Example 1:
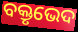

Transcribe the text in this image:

ବକ୍ତୃଭେଦ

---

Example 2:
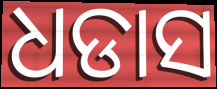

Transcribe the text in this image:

ଧଡାସ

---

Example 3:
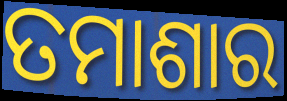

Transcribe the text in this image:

ତମାଶାର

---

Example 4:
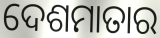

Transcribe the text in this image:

ଦେଶମାତାର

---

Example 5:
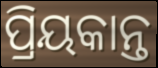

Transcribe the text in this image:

ପ୍ରିୟକାନ୍ତ